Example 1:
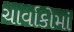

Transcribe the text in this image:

ચાર્વાકોમાં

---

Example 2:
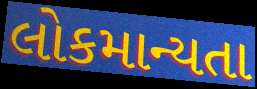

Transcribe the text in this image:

લોકમાન્યતા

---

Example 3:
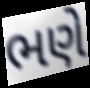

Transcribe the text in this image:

ભણે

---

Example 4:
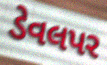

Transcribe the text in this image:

ડેવલપર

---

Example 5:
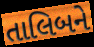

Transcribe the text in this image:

તાલિબને